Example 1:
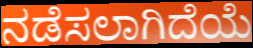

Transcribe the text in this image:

ನಡೆಸಲಾಗಿದೆಯೆ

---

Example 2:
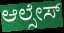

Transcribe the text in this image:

ಆಲ್ಸೇಸ್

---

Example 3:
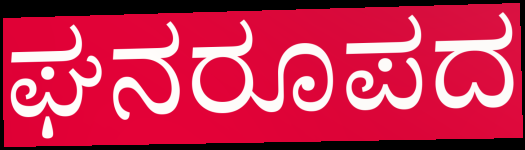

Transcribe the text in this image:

ಘನರೂಪದ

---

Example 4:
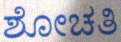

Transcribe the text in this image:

ಶೋಚತಿ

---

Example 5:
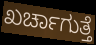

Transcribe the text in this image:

ಖರ್ಚಾಗುತ್ತೆ